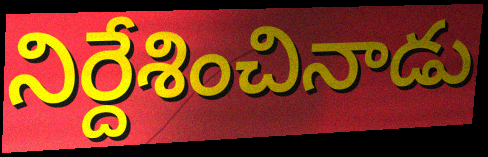
నిర్దేశించినాడు